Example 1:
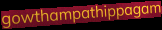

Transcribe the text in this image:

gowthampathippagam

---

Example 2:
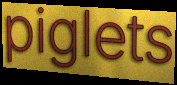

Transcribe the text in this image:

piglets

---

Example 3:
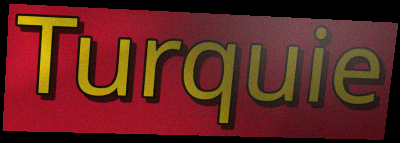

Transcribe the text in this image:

Turquie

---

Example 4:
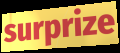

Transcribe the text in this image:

surprize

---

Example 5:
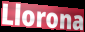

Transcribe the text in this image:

Llorona